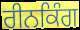
ਰੀਨਕਿੰਗ